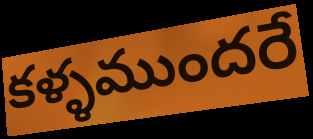
కళ్ళముందరే